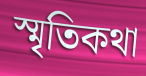
স্মৃতিকথা